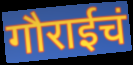
गौराईचं